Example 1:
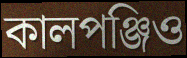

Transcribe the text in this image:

কালপঞ্জিও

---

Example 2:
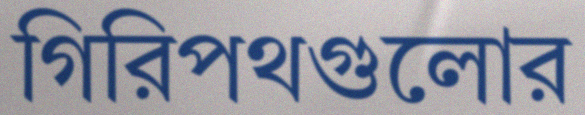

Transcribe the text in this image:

গিরিপথগুলোর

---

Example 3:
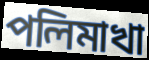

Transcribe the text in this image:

পলিমাখা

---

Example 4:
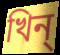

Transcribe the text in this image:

খিন্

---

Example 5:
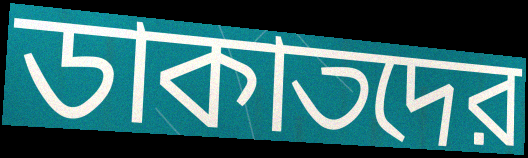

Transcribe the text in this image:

ডাকাতদের